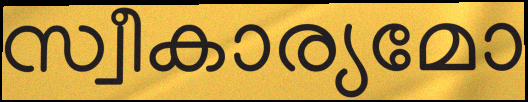
സ്വീകാര്യമോ